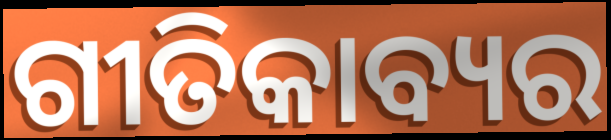
ଗୀତିକାବ୍ୟର